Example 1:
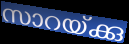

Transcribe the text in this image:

സാറയ്‌ക്കു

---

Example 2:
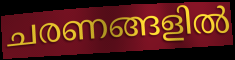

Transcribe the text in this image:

ചരണങ്ങളിൽ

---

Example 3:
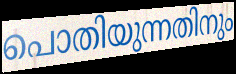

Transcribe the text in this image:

പൊതിയുന്നതിനും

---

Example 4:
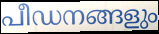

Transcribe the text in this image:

പീഡനങ്ങളും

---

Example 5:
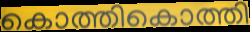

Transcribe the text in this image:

കൊത്തികൊത്തി